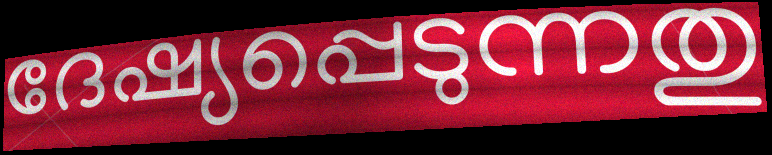
ദേഷ്യപ്പെടുന്നതു